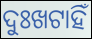
ଦୁଃଖଟାହିଁ